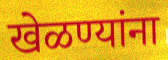
खेळण्यांना